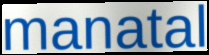
manatal